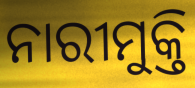
ନାରୀମୁକ୍ତି